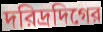
দরিদ্রদিগের